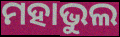
ମହାଭୁଲ